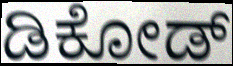
ಡಿಕೋಡ್